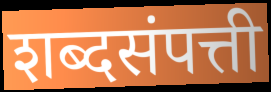
शब्दसंपत्ती